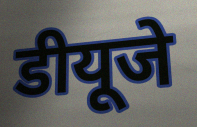
डीयूजे